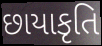
છાયાકૃતિ